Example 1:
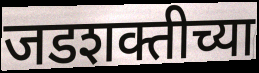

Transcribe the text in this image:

जडशक्तीच्या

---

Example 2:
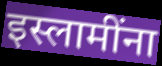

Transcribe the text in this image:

इस्लामींना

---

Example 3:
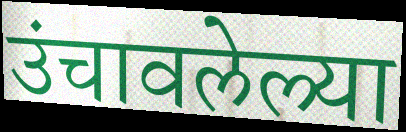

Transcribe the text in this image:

उंचावलेल्या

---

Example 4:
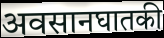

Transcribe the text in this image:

अवसानघातकी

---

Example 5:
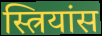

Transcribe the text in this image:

स्त्रियांस